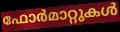
ഫോർമാറ്റുകൾ